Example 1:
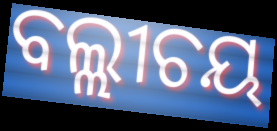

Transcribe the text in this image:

ବଲ୍ଲୀଚୟ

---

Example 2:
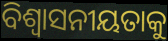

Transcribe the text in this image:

ବିଶ୍ୱାସନୀୟତାକୁ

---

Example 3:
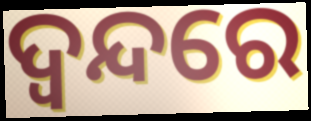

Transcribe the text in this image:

ଦ୍ୱନ୍ଦରେ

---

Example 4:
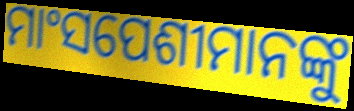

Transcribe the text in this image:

ମାଂସପେଶୀମାନଙ୍କୁ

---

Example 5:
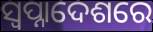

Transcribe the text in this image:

ସ୍ଵପ୍ନାଦେଶରେ